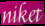
niket